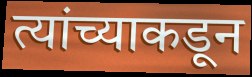
त्यांच्याकडून